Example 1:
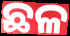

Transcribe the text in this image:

ଛଳ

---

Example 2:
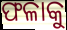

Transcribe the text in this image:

ଫଳାକୁ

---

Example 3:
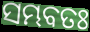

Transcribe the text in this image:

ସମ୍ଭବତଃ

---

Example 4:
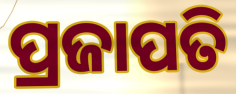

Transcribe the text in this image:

ପ୍ରଜାପତି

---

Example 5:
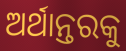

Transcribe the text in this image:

ଅର୍ଥାନ୍ତରକୁ